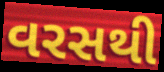
વરસથી